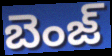
బెంజ్